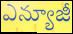
ఎన్యూజీ